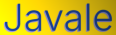
Javale